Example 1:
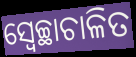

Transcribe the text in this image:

ସ୍ୱେଚ୍ଛାଚାଳିତ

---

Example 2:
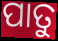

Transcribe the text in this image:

ପାତୁ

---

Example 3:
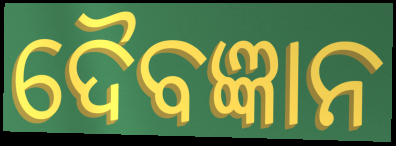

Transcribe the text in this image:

ଦୈବଜ୍ଞାନ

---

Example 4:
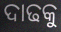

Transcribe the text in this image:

ଦାଢକୁ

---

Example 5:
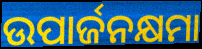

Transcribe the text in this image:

ଉପାର୍ଜନକ୍ଷମା